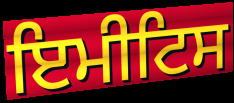
ਇਮੀਟਿਸ